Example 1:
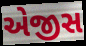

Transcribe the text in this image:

એજીસ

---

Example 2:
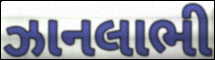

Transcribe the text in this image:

ઝાનલાભી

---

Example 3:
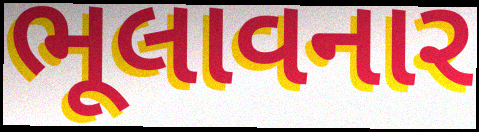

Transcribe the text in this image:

ભૂલાવનાર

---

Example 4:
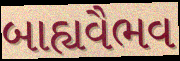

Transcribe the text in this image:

બાહ્યવૈભવ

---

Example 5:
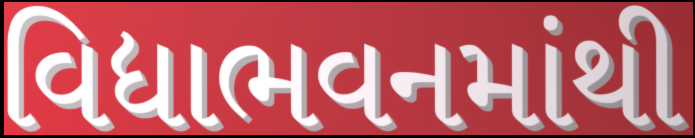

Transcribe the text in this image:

વિદ્યાભવનમાંથી